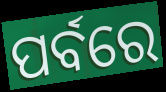
ପର୍ବରେ